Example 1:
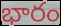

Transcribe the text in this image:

భారం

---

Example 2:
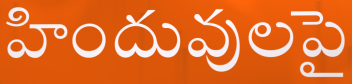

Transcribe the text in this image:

హిందువులపై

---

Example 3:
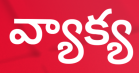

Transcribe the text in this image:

వ్యాక్య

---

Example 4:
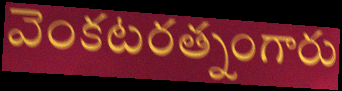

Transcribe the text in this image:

వెంకటరత్నంగారు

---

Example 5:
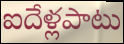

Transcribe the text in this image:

ఐదేళ్లపాటు